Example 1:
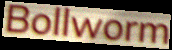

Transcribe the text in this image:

Bollworm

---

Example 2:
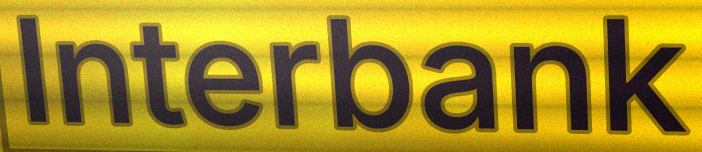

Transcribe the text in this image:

Interbank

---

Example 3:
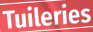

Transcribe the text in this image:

Tuileries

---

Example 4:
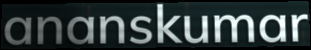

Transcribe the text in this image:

ananskumar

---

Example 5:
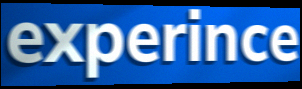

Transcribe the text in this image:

experince